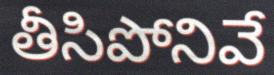
తీసిపోనివే